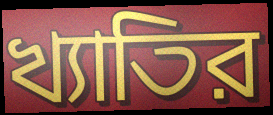
খ্যাতির